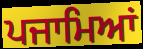
ਪਜਾਮਿਆਂ